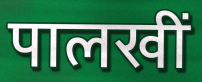
पालखीं